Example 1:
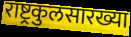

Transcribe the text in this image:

राष्ट्रकुलसारख्या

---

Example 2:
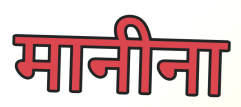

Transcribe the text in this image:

मानीना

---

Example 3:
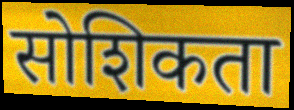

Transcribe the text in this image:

सोशिकता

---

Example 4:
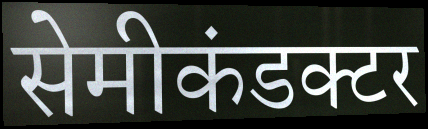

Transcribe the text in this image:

सेमीकंडक्टर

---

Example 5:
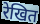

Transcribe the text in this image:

रेखित